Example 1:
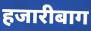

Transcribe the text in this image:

हजारीबाग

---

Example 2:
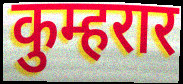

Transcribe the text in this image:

कुम्हरार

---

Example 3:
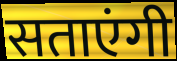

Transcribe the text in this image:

सताएंगी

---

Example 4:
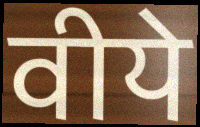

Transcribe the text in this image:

वीये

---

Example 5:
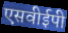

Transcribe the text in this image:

एसवीईपी